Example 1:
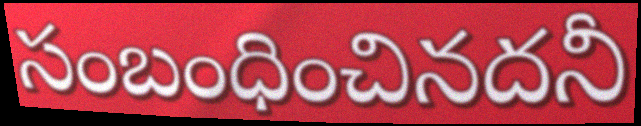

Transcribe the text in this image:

సంబంధించినదనీ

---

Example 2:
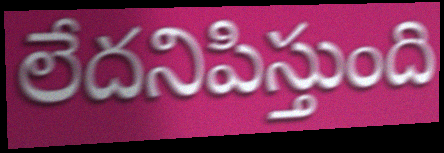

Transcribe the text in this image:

లేదనిపిస్తుంది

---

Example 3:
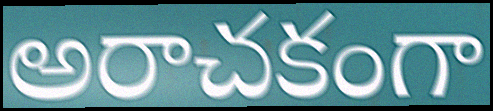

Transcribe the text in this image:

అరాచకంగా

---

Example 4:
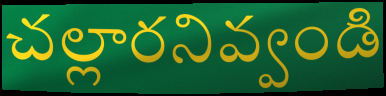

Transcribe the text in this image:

చల్లారనివ్వండి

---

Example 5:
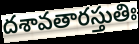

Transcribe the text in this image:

దశావతారస్తుతిః